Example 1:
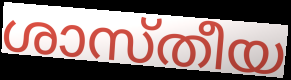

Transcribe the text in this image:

ശാസ്തീയ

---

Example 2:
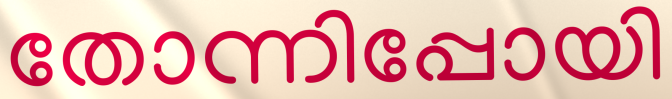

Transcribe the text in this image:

തോന്നിപ്പോയി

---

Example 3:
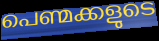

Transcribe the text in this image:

പെണ്മക്കളുടെ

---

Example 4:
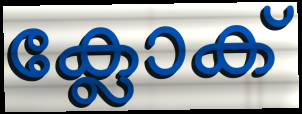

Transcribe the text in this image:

ക്ലോക്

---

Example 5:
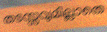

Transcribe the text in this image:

തടസ്സവുമില്ലാതെ